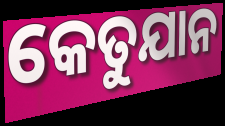
କେତୁଯାନ